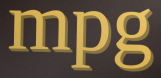
mpg